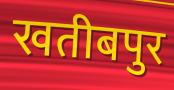
खतीबपुर